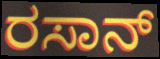
ರಸಾನ್